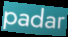
padar